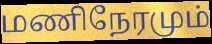
மணிநேரமும்